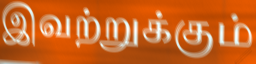
இவற்றுக்கும்